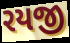
રયજી